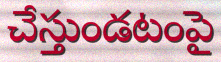
చేస్తుండటంపై